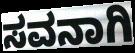
ಸವನಾಗಿ